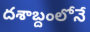
దశాబ్దంలోనే